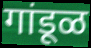
गांडूळ